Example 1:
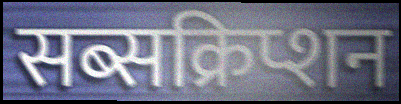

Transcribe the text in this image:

सब्सक्रिप्शन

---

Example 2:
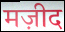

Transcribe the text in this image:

मज़ीद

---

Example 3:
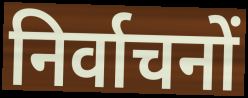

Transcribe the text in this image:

निर्वाचनों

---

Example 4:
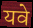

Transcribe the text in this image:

यवे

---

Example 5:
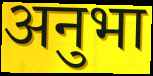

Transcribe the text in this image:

अनुभा